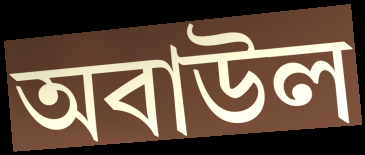
অবাউল